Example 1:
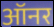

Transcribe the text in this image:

ऑनर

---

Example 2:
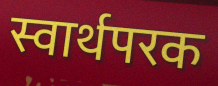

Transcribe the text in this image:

स्वार्थपरक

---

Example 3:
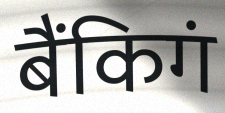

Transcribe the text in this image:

बैंकिगं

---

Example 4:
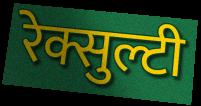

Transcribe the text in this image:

रेक्सुल्टी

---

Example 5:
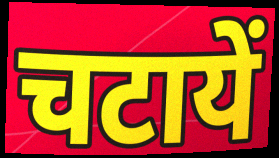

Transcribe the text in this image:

चटायें